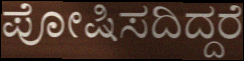
ಪೋಷಿಸದಿದ್ದರೆ